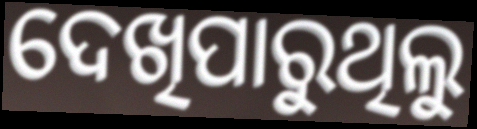
ଦେଖିପାରୁଥିଲୁ